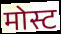
मोस्ट